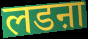
लडऩा